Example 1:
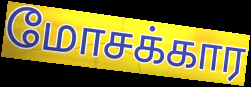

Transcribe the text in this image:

மோசக்கார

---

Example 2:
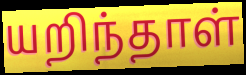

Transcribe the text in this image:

யறிந்தாள்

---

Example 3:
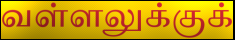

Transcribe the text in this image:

வள்ளலுக்குக்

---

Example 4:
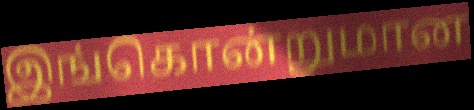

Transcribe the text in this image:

இங்கொன்றுமான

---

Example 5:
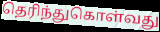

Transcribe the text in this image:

தெரிந்துகொள்வது